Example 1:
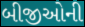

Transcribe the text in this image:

બીજીઓની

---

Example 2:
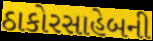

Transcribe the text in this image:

ઠાકોરસાહેબની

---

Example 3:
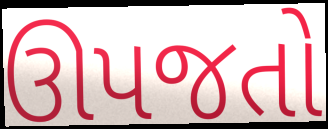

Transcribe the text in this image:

ઊપજતો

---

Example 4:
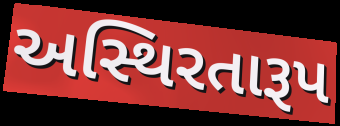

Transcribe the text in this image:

અસ્થિરતારૂપ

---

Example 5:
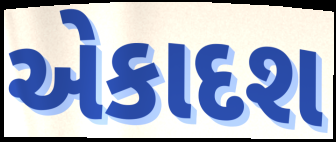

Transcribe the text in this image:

એકાદશ